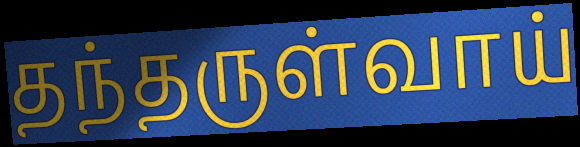
தந்தருள்வாய்